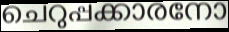
ചെറുപ്പക്കാരനോ